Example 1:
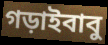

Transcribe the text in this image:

গড়াইবাবু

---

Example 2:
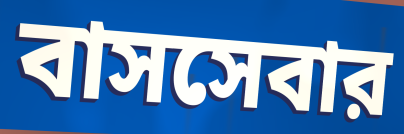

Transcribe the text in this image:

বাসসেবার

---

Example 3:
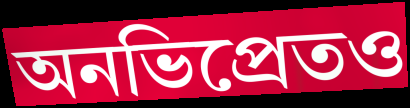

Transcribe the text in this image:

অনভিপ্রেতও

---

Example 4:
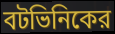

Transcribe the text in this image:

বটভিনিকের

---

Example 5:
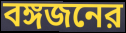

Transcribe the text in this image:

বঙ্গজনের